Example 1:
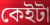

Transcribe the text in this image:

কেইটা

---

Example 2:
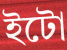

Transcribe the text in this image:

ইটো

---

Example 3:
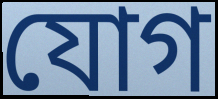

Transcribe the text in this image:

যোগ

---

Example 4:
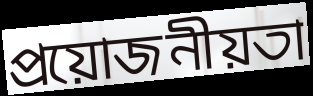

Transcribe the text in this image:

প্ৰয়োজনীয়তা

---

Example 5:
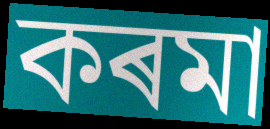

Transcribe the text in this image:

কৰমা